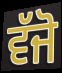
ਵੱਜੋ